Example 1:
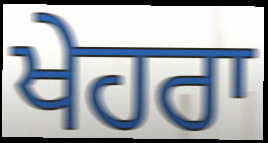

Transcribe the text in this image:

ਖੇਹਰਾ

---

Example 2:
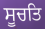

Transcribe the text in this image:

ਸੂਚਤਿ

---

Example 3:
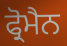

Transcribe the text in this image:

ਫ੍ਰੋਮੈਨ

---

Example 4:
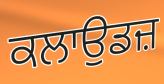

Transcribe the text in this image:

ਕਲਾਉਡਜ਼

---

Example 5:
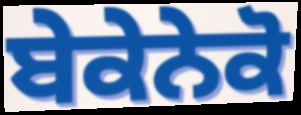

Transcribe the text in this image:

ਬੇਕੇਨੇਕੋ